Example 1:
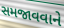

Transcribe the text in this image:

સમજાવવાને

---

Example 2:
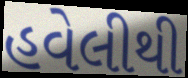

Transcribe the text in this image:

હવેલીથી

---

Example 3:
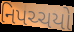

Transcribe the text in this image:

નિપચ્ચયો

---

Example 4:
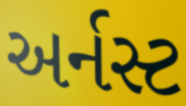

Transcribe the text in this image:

અર્નસ્ટ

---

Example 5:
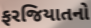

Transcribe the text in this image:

ફરજિયાતનો